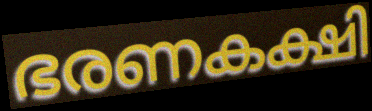
ഭരണകക്ഷി